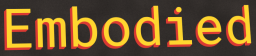
Embodied